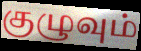
குழுவும்